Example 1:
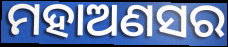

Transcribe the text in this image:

ମହାଅଣସର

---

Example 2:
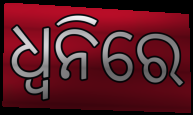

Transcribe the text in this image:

ଧ୍ଵନିରେ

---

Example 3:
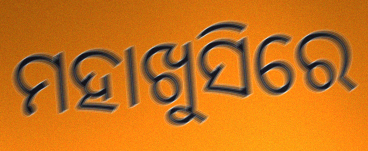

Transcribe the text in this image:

ମହାଖୁସିରେ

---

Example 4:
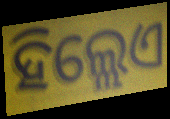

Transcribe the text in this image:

ହିଲ୍ଲେଏ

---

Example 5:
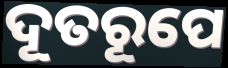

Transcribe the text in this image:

ଦୂତରୂପେ